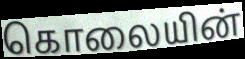
கொலையின்